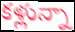
కళ్లున్నా